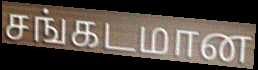
சங்கடமான